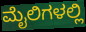
ಮೈಲಿಗಳಲ್ಲಿ